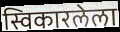
स्विकारलेला